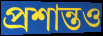
প্রশান্তও